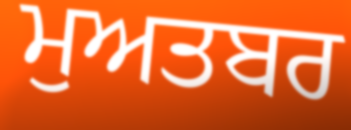
ਮੁਅਤਬਰ